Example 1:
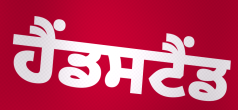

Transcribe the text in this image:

ਹੈਂਡਸਟੈਂਡ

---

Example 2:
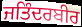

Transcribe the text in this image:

ਜਤਿੰਦਰਬੀਰ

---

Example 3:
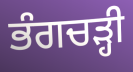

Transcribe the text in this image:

ਭੰਗਚੜ੍ਹੀ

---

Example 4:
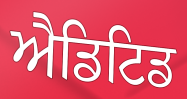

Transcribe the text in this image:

ਐਡਿਟਿਡ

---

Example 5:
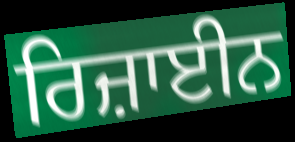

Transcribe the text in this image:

ਰਿਜ਼ਾਈਨ